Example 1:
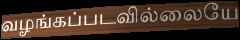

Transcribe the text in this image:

வழங்கப்படவில்லையே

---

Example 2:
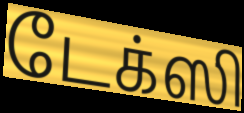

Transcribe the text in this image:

டேக்ஸி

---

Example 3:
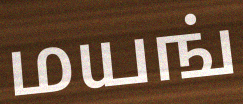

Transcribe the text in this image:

மயங்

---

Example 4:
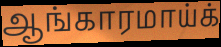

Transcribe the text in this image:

ஆங்காரமாய்க்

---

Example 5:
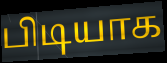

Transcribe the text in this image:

பிடியாக